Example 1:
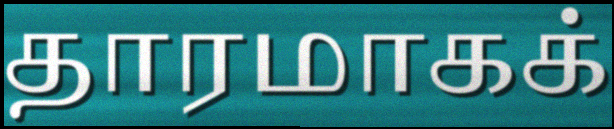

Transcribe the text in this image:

தாரமாகக்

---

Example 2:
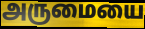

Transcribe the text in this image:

அருமையை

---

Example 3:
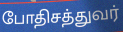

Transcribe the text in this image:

போதிசத்துவர்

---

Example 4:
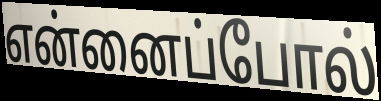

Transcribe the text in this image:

என்னைப்போல்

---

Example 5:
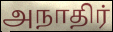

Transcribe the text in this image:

அநாதிர்